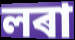
লৰা